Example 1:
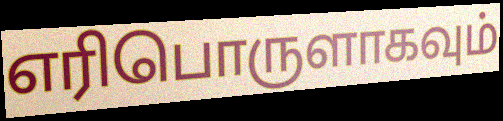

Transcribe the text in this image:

எரிபொருளாகவும்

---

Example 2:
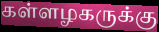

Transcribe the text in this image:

கள்ளழகருக்கு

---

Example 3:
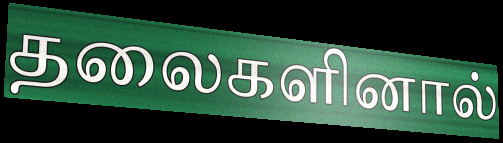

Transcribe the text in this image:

தலைகளினால்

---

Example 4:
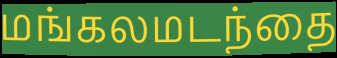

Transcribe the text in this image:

மங்கலமடந்தை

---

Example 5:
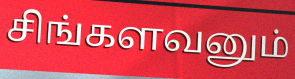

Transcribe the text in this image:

சிங்களவனும்